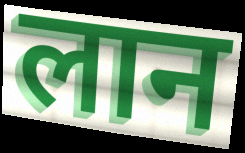
लान